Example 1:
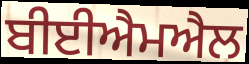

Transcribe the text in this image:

ਬੀਈਐਮਐਲ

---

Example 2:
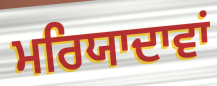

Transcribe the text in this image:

ਮਰਿਯਾਦਾਵਾਂ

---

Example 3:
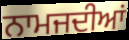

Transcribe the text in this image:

ਨਾਮਜਦੀਆਂ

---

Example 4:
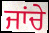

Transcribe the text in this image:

ਜਾਂਚੇ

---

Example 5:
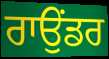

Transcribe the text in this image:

ਰਾਉਂਡਰ